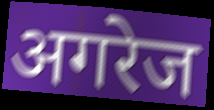
अगरेज